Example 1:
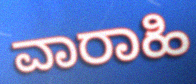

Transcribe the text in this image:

ವಾರಾಹಿ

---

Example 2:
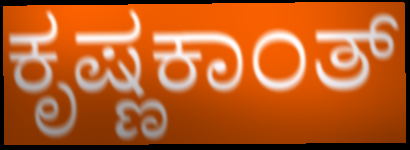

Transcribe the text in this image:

ಕೃಷ್ಣಕಾಂತ್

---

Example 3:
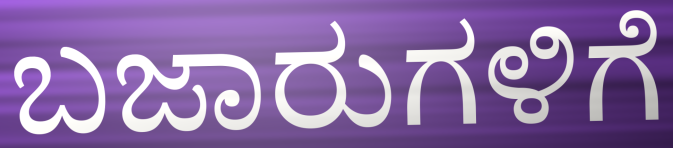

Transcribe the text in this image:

ಬಜಾರುಗಳಿಗೆ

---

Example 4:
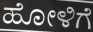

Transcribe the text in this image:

ಹೋಳಿಗೆ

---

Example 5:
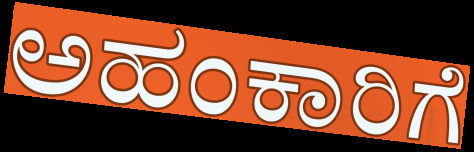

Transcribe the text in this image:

ಅಹಂಕಾರಿಗೆ